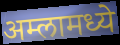
अम्लामध्ये